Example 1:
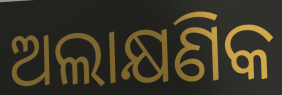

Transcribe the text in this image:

ଅଲାକ୍ଷଣିକ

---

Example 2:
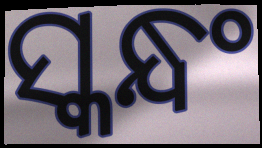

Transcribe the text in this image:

ସ୍କନ୍ଧଂ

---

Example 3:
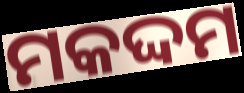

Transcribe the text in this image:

ମକଦ୍ଦମ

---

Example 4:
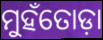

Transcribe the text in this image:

ମୁହଁତୋଡ଼ା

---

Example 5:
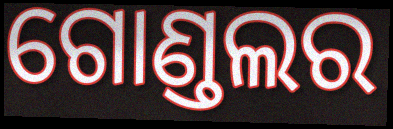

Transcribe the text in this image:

ଗୋଣ୍ଡଲର